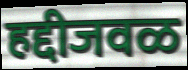
हद्दीजवळ